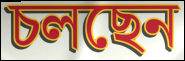
চলছেন